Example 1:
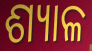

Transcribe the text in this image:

ଶ୍ୟାଳ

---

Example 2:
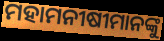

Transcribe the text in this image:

ମହାମନୀଷୀମାନଙ୍କୁ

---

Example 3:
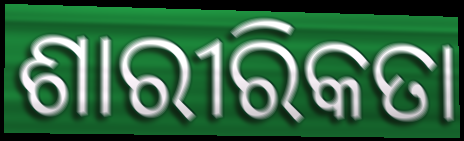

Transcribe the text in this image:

ଶାରୀରିକତା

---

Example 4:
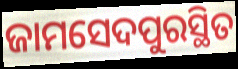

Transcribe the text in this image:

ଜାମସେଦପୁରସ୍ଥିତ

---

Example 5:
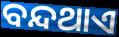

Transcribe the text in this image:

ବନ୍ଦଥାଏ